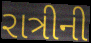
રાત્રીની